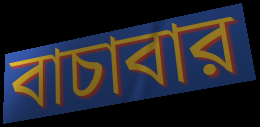
বাচাবার